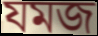
যমজ